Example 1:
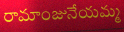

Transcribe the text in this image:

రామాంజునేయమ్మ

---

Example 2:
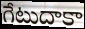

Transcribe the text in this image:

గేటుదాకా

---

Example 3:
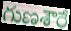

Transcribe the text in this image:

గుణశౌరే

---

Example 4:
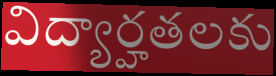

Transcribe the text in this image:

విద్యార్హతలకు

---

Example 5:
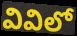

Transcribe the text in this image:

వివిలో